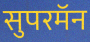
सुपरमॅन